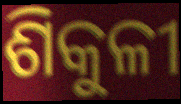
ଶିକୁଳୀ